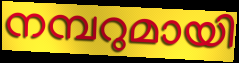
നമ്പറുമായി